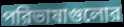
পরিভাষাগুলোর